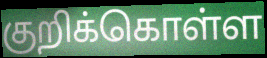
குறிக்கொள்ள